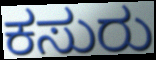
ಕಸುರು